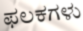
ಫಲಕಗಳು